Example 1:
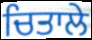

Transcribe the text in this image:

ਚਿਤਾਲੇ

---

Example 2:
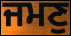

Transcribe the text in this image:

ਜਮਣੁ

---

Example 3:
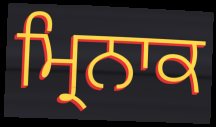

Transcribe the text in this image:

ਮ੍ਰਿਨਾਕ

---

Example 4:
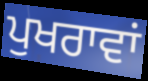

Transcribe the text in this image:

ਪੁਖਰਾਵਾਂ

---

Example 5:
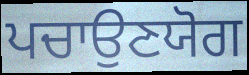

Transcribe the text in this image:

ਪਚਾਉਣਯੋਗ